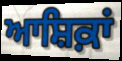
ਆਸ਼ਿਕ਼ਾਂ